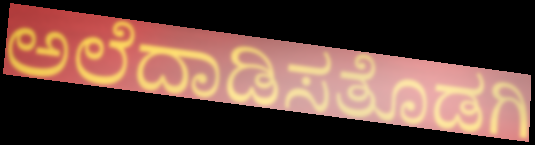
ಅಲೆದಾಡಿಸತೊಡಗಿ